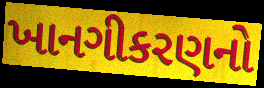
ખાનગીકરણનો